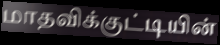
மாதவிக்குட்டியின்